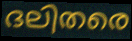
ദലിതരെ